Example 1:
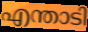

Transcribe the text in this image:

എന്താടി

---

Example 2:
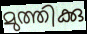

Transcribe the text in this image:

മുത്തിക്കു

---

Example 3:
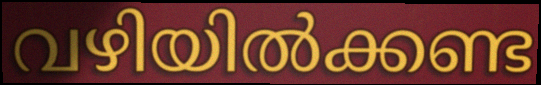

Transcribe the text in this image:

വഴിയിൽക്കണ്ട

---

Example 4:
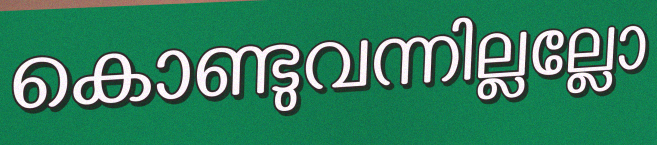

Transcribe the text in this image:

കൊണ്ടുവന്നില്ലല്ലോ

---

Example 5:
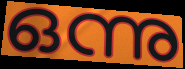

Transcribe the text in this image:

ഒന്നു